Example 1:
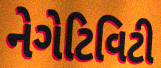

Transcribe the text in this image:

નેગેટિવિટી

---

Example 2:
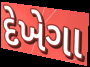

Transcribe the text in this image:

દેખેગા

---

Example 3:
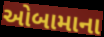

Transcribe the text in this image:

ઓબામાના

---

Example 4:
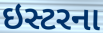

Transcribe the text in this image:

ઇસ્ટરના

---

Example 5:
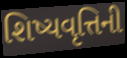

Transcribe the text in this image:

શિષ્યવૃત્તિની